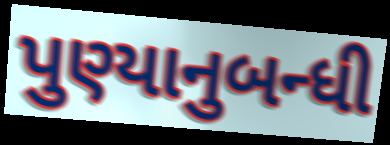
પુણ્યાનુબન્ધી